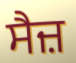
ਸੈਜ਼